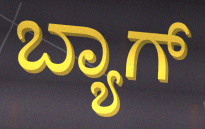
ಬ್ಯಾಗ್